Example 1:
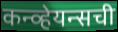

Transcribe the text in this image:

कन्व्हेयन्सची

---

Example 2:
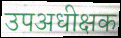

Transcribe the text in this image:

उपअधीक्षक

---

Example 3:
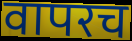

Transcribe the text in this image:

वापरच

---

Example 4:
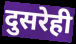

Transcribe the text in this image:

दुसरेही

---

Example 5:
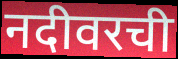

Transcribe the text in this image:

नदीवरची